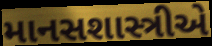
માનસશાસ્ત્રીએ